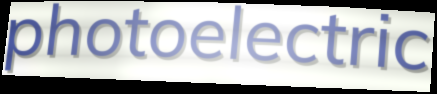
photoelectric